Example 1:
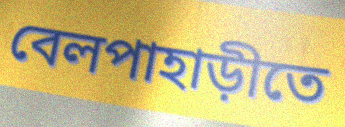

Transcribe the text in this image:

বেলপাহাড়ীতে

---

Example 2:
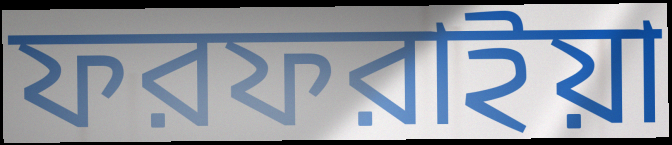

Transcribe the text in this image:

ফরফরাইয়া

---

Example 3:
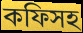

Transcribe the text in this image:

কফিসহ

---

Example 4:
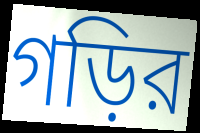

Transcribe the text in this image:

গড়ির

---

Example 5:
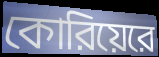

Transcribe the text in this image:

কোরিয়েরে